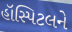
હૉસ્પિટલને